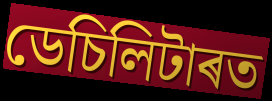
ডেচিলিটাৰত